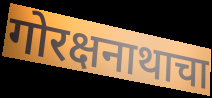
गोरक्षनाथाचा